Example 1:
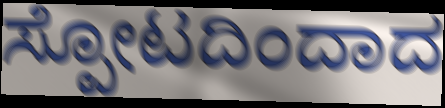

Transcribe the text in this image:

ಸ್ಪೋಟದಿಂದಾದ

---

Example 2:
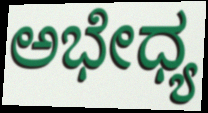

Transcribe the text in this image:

ಅಭೇಧ್ಯ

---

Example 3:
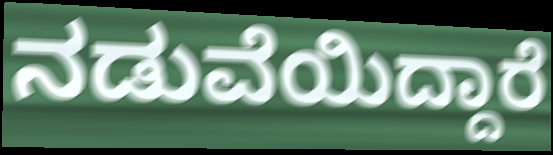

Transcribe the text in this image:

ನಡುವೆಯಿದ್ದಾರೆ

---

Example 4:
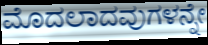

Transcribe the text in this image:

ಮೊದಲಾದವುಗಳನ್ನೇ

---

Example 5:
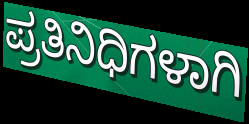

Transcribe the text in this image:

ಪ್ರತಿನಿಧಿಗಳಾಗಿ